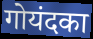
गोयंदका